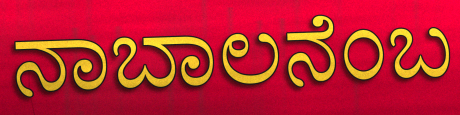
ನಾಬಾಲನೆಂಬ